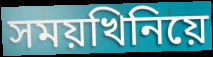
সময়খিনিয়ে